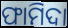
ଫାମିଦା